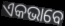
ଏକଭାବେ